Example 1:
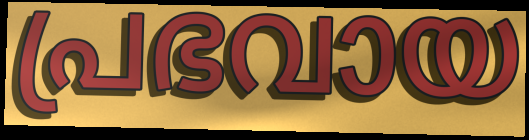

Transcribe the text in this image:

പ്രഭവായ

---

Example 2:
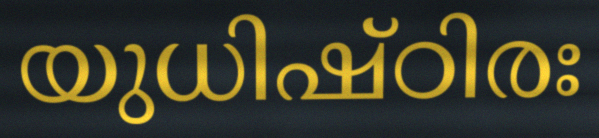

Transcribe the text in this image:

യുധിഷ്ഠിരഃ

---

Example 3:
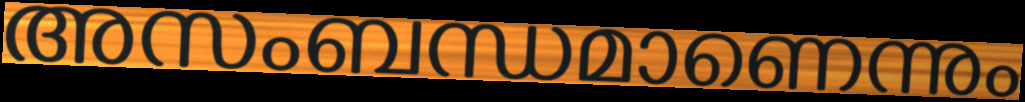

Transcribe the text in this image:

അസംബന്ധമാണെന്നും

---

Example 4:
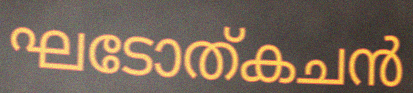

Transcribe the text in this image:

ഘടോത്കചൻ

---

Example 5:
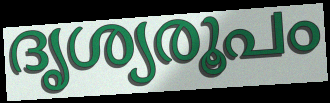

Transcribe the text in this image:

ദൃശ്യരൂപം